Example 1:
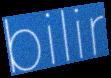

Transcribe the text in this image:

bilir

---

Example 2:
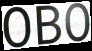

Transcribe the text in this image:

OBO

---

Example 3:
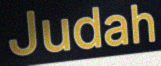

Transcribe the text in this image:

Judah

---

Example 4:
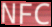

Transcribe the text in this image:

NFC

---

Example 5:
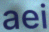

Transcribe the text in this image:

aei